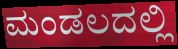
ಮಂಡಲದಲ್ಲಿ